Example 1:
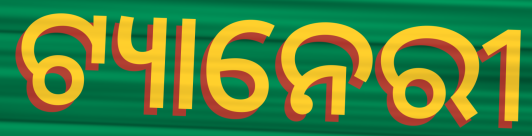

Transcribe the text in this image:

ଟ୍ୟାନେରୀ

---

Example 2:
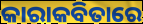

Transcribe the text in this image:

କାରାକବିତାରେ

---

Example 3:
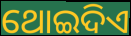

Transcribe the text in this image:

ଥୋଇଦିଏ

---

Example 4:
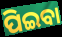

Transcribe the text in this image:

ପିଇବା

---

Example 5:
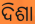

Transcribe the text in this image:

ଦିଶା